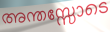
അന്തസ്സോടെ